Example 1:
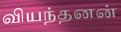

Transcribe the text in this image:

வியந்தனன்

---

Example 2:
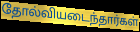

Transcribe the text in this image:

தோல்வியடைந்தார்கள்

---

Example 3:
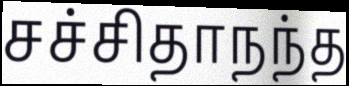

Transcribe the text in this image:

சச்சிதாநந்த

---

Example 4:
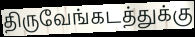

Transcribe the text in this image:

திருவேங்கடத்துக்கு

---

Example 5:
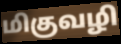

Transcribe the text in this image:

மிகுவழி